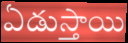
ఏడుస్తాయి